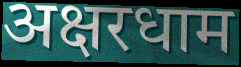
अक्षरधाम